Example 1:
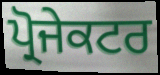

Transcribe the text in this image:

ਪ੍ਰੋਜੇਕਟਰ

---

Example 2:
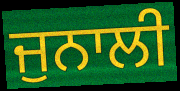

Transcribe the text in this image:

ਜੁਨਾਲੀ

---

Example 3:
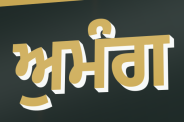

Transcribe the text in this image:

ਅੁਮੰਗ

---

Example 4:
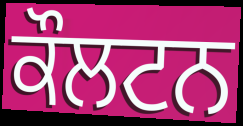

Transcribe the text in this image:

ਕੌਲਟਨ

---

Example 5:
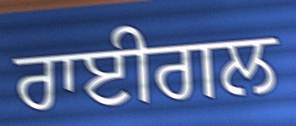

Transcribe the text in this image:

ਰਾਈਗਲ